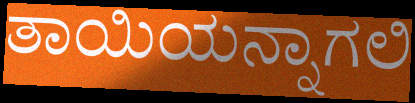
ತಾಯಿಯನ್ನಾಗಲಿ